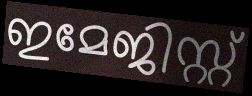
ഇമേജിസ്റ്റ്